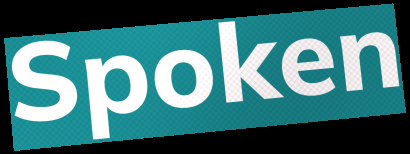
Spoken